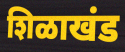
शिळाखंड